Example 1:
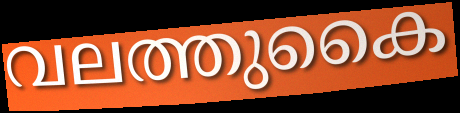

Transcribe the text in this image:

വലത്തുകൈ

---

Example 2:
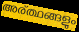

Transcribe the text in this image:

അര്ത്ഥങ്ങളും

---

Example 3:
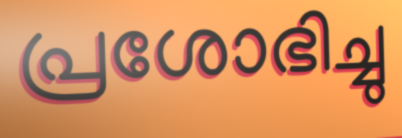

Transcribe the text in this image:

പ്രശോഭിച്ചു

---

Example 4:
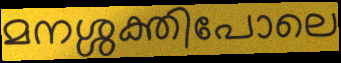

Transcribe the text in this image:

മനശ്ശക്തിപോലെ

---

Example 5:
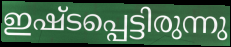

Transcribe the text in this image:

ഇഷ്ടപ്പെട്ടിരുന്നു